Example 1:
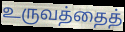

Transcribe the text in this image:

உருவத்தைத்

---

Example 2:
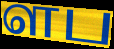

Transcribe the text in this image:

ளப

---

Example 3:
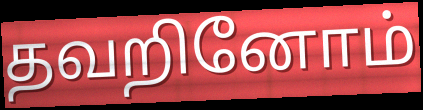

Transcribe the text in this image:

தவறினோம்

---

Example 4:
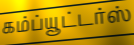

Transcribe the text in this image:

கம்ப்யூட்டர்ஸ்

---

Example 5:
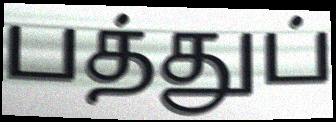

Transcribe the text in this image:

பத்துப்